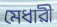
মেধাৱী